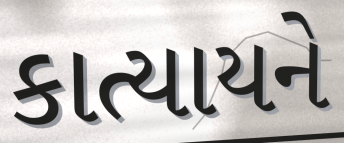
કાત્યાયને